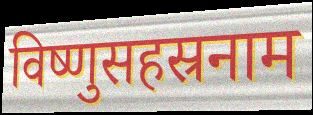
विष्णुसहस्रनाम